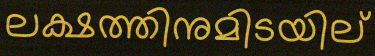
ലക്ഷത്തിനുമിടയില്